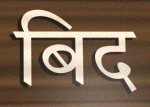
बिद